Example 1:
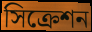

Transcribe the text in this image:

সিক্রেশন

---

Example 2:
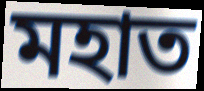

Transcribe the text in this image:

মহাত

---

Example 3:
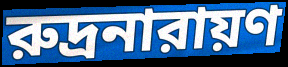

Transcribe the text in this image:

রুদ্রনারায়ণ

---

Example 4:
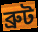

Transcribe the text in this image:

ব্রুট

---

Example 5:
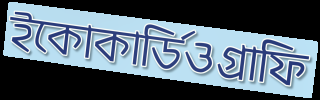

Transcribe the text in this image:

ইকোকার্ডিওগ্রাফি